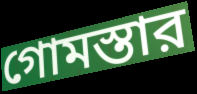
গোমস্তার